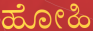
ಹೋಹಿ